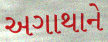
અગાથાને